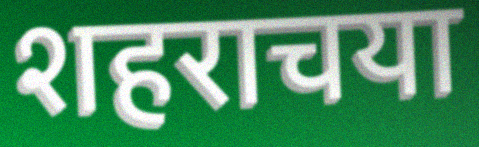
शहराचया